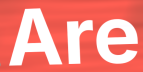
Are